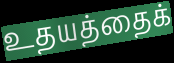
உதயத்தைக்